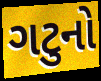
ગટુનો